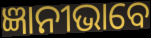
ଜ୍ଞାନୀଭାବେ